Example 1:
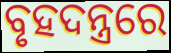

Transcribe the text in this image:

ବୃହଦନ୍ତ୍ରରେ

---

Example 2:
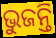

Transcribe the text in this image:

ଭୁଜନ୍ତି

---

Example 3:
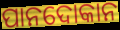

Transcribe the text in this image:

ପାନଦୋକାନ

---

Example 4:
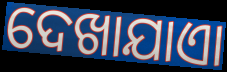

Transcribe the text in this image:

ଦେଖାଯାଏା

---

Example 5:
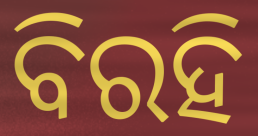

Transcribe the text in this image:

ବିରହି